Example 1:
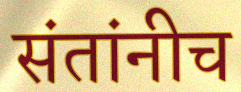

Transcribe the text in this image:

संतांनीच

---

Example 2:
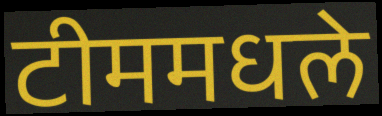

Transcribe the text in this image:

टीममधले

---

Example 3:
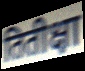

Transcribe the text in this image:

तितीक्षा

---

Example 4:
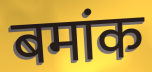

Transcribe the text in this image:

बमांक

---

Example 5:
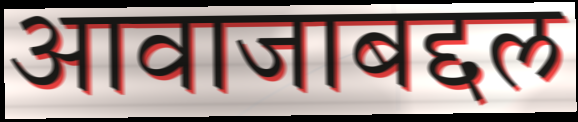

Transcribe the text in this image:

आवाजाबद्दल